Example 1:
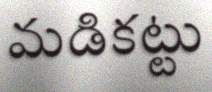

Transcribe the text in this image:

మడికట్టు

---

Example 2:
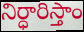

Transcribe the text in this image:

నిర్ధారిస్తాం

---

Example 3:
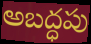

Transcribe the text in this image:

అబద్ధపు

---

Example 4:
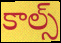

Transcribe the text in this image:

కాల్స్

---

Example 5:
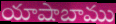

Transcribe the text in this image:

యాషాబాము